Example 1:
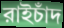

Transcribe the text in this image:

রাইচাঁদ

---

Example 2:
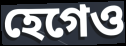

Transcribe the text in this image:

হেগেও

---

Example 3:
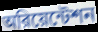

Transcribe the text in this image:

অরিয়েন্টেশন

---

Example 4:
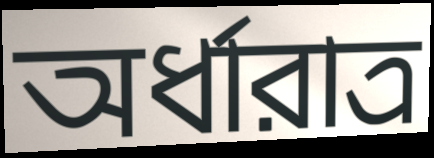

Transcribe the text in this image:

অর্ধারাত্র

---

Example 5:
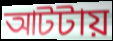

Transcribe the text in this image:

আটটায়